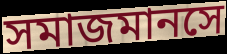
সমাজমানসে